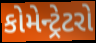
કોમેન્ટ્રેટરો